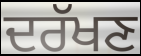
ਦਰੱਖਣ